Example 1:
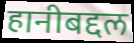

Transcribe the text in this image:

हानीबद्दल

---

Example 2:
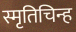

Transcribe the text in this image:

स्मृतिचिन्ह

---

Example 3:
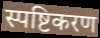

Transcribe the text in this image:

स्पष्टिकरण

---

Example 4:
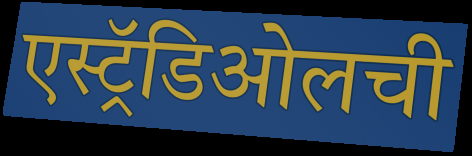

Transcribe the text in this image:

एस्ट्रॅडिओलची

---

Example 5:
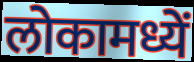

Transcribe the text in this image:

लोकामध्यें